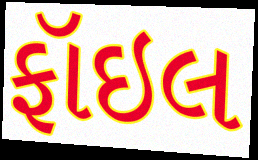
ફૉઇલ